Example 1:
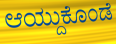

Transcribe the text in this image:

ಆಯ್ದುಕೊಂಡೆ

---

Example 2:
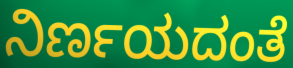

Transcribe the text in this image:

ನಿರ್ಣಯದಂತೆ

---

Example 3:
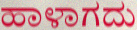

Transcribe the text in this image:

ಹಾಳಾಗದು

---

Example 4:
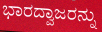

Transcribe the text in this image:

ಭಾರದ್ವಾಜರನ್ನು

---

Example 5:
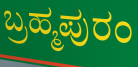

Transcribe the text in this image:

ಬ್ರಹ್ಮಪುರಂ